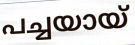
പച്ചയായ്